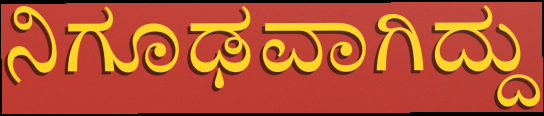
ನಿಗೂಢವಾಗಿದ್ದು